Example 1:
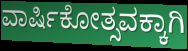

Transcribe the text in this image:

ವಾರ್ಷಿಕೋತ್ಸವಕ್ಕಾಗಿ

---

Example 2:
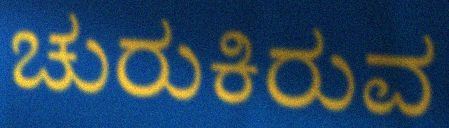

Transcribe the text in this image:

ಚುರುಕಿರುವ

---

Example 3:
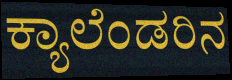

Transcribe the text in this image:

ಕ್ಯಾಲೆಂಡರಿನ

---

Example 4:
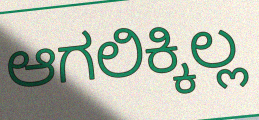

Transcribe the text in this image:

ಆಗಲಿಕ್ಕಿಲ್ಲ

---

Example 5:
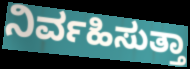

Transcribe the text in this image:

ನಿರ್ವಹಿಸುತ್ತಾ